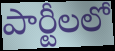
పార్టీలలో